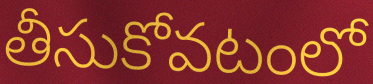
తీసుకోవటంలో